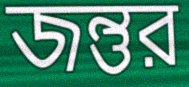
জন্তুর